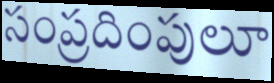
సంప్రదింపులూ